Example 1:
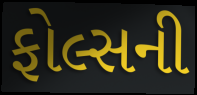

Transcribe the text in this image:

ફોલ્સની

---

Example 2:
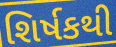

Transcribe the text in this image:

શિર્ષકથી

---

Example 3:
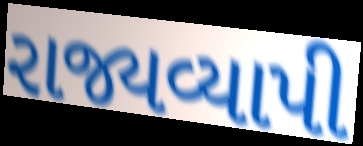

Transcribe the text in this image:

રાજ્યવ્યાપી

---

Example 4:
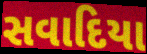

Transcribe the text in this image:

સવાદિયા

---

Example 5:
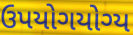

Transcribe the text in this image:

ઉપયોગયોગ્ય